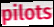
pilots